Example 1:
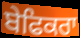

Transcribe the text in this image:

ਬੇਫਿਕਰਾ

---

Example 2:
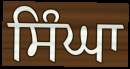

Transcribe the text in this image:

ਸਿੰਘਾ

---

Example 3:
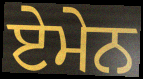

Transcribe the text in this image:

ਏਮੇਨ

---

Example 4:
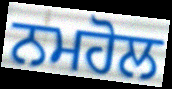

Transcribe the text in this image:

ਨਮਹੋਲ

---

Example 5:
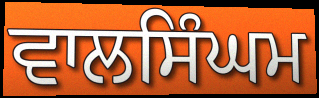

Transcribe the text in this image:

ਵਾਲਸਿੰਘਮ